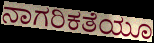
ನಾಗರಿಕತೆಯೂ